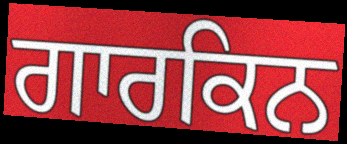
ਗਾਰਕਿਨ